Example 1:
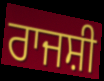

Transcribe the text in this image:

ਰਾਜਸ਼ੀ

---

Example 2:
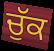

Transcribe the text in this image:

ਚੁੱਕ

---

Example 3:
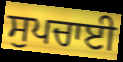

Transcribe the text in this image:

ਸੁਪਚਾਈ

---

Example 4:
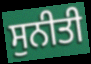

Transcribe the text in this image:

ਸੁਨੀਤੀ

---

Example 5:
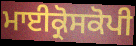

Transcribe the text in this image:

ਮਾਈਕ੍ਰੋਸਕੋਪੀ